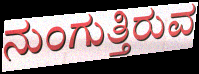
ನುಂಗುತ್ತಿರುವ